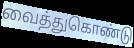
வைத்துகொண்டு